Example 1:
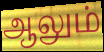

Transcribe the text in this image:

ஆலும்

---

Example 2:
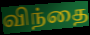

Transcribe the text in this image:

விந்தை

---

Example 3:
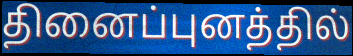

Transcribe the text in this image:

தினைப்புனத்தில்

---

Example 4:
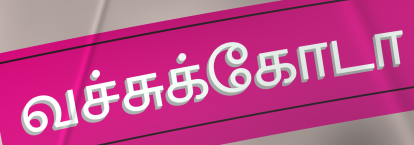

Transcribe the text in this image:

வச்சுக்கோடா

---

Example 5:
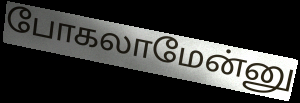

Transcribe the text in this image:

போகலாமேன்னு